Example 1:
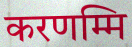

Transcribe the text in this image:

करणम्मि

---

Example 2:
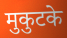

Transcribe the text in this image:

मुकुटके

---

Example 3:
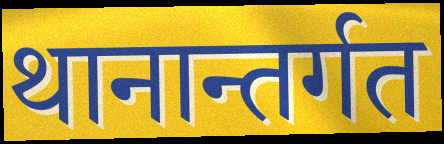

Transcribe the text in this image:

थानान्तर्गत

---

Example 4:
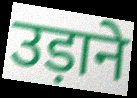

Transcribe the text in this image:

उड़ाने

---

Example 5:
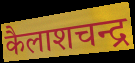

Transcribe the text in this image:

कैलाशचन्द्र